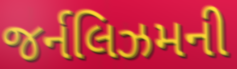
જર્નલિઝમની